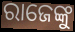
ରାଜେଙ୍କୁ